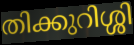
തിക്കുറിശ്ശി